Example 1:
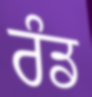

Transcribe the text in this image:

ਰੰਡ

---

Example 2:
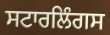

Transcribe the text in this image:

ਸਟਾਰਲਿੰਗਸ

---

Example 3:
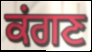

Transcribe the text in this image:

ਕਂਗਣ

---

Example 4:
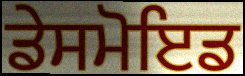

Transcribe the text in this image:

ਡੇਸਮੋਇਡ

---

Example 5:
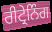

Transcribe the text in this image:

ਰੀਟ੍ਰੇਨਿੰਗ